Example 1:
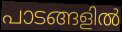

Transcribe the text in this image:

പാടങ്ങളിൽ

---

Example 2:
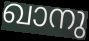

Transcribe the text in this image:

ഖാനു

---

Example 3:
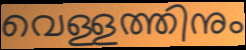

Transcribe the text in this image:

വെള്ളത്തിനും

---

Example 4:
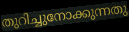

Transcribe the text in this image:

തുറിച്ചുനോക്കുന്നതു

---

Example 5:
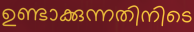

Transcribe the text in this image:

ഉണ്ടാക്കുന്നതിനിടെ